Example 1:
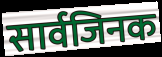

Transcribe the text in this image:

सार्वजिनक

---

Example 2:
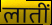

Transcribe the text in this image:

लातीं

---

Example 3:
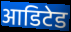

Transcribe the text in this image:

आडिटेड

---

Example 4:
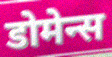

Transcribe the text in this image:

डोमेन्स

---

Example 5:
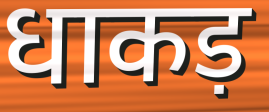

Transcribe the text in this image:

धाकड़